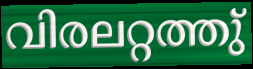
വിരലറ്റത്തു്